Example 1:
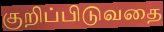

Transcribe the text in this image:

குறிப்பிடுவதை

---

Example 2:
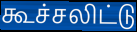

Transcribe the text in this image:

கூச்சலிட்டு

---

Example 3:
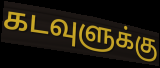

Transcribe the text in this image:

கடவுளுக்கு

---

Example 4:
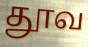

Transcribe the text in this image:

தூவ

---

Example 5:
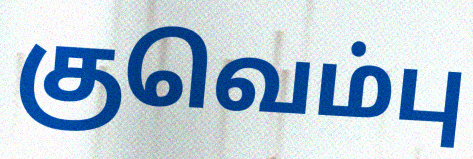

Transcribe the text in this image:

குவெம்பு